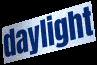
daylight